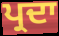
ਪ੍ਰਦਾ